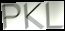
PKL